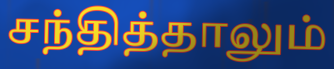
சந்தித்தாலும்